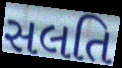
સલતિ